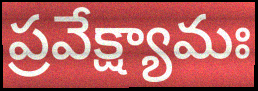
ప్రవేక్ష్యామః